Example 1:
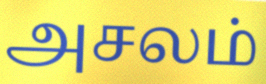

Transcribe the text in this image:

அசலம்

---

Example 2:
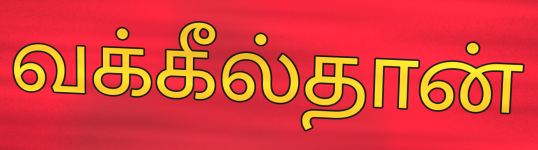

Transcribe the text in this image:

வக்கீல்தான்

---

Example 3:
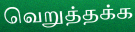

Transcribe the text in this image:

வெறுத்தக்க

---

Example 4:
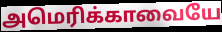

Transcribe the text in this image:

அமெரிக்காவையே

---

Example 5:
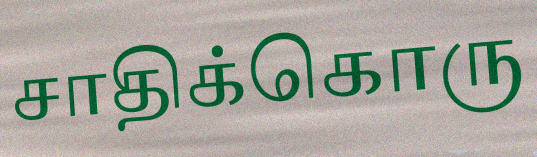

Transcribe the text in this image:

சாதிக்கொரு